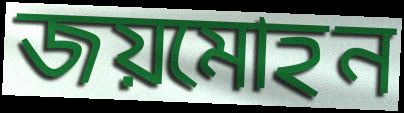
জয়মোহন